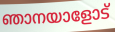
ഞാനയാളോട്